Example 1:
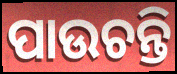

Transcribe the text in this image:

ପାଉଚନ୍ତି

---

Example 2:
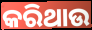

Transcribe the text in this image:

କରିଥାଉ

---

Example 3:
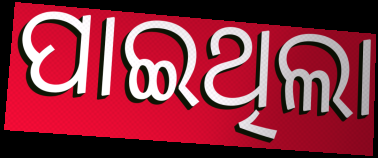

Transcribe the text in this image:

ପାଇଥିଲା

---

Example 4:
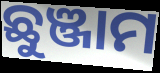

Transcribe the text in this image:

ଛୁଞ୍ଜାମ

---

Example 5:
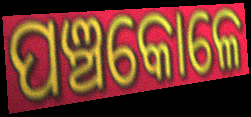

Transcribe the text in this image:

ପଞ୍ଚକୋଳେ